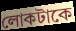
লোকটাকে